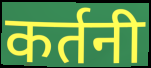
कर्तनी